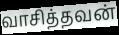
வாசித்தவன்